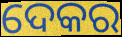
ଦେକର